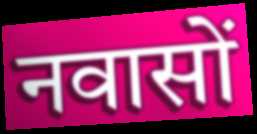
नवासों